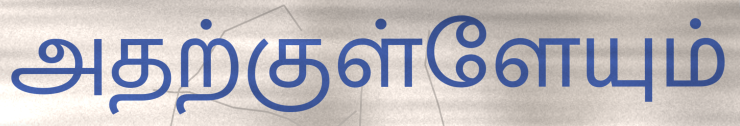
அதற்குள்ளேயும்